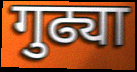
गुढ्या